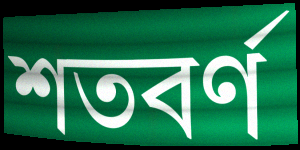
শতবর্ণ